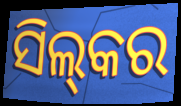
ସିଲ୍‍କର